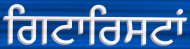
ਗਿਟਾਰਿਸਟਾਂ